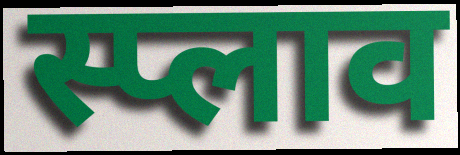
स्प्लाव